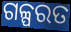
ଗଳ୍ପରତ